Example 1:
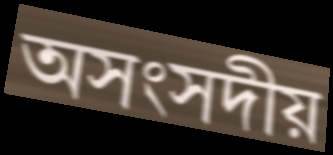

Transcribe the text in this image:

অসংসদীয়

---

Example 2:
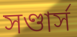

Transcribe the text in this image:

সণ্ডার্স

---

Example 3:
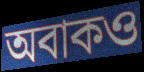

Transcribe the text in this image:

অবাকও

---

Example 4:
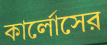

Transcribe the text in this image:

কার্লোসের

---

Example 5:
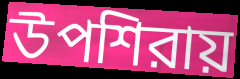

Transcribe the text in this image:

উপশিরায়